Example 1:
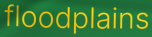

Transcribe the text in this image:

floodplains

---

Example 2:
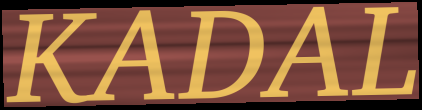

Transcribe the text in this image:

KADAL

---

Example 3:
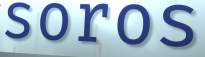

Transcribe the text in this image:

soros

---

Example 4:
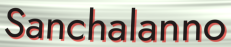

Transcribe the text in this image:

Sanchalanno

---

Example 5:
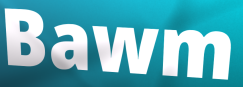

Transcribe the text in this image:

Bawm